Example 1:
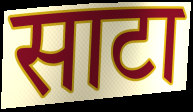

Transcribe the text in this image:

साटा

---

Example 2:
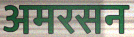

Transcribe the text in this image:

अमरसन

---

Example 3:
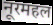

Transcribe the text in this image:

नूरमहल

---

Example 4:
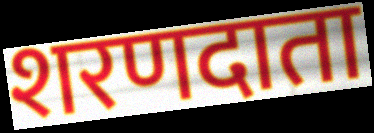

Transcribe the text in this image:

शरणदाता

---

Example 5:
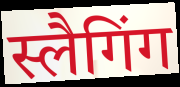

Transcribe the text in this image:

स्लैगिंग